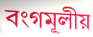
বংগমূলীয়